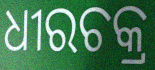
ଧୀରଚକ୍ର